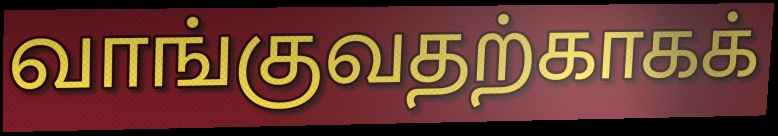
வாங்குவதற்காகக்